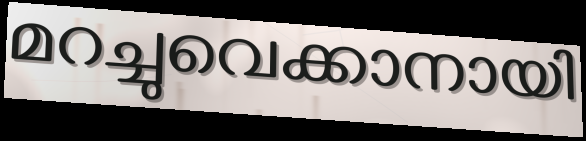
മറച്ചുവെക്കാനായി